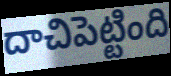
దాచిపెట్టింది